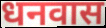
धनवास